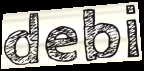
debi